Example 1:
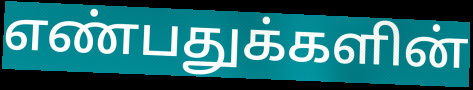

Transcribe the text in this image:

எண்பதுக்களின்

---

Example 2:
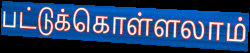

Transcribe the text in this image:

பட்டுக்கொள்ளலாம்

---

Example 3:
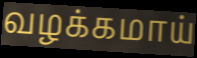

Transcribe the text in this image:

வழக்கமாய்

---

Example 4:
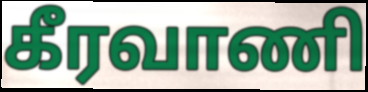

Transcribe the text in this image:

கீரவாணி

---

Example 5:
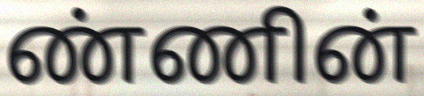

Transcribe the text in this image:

ண்ணின்